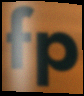
fp